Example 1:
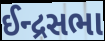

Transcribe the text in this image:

ઈન્દ્રસભા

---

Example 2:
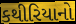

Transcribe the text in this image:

કથીરિયાનો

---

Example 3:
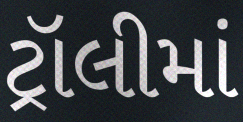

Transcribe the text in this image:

ટ્રૉલીમાં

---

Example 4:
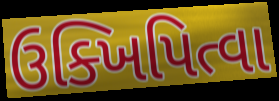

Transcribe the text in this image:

ઉક્ખિપિત્વા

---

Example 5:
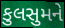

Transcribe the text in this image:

કુલસુમને